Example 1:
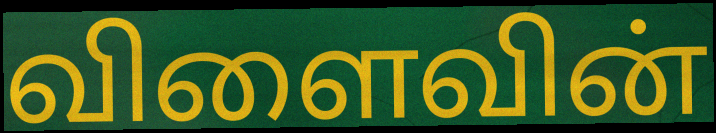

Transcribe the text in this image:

விளைவின்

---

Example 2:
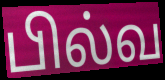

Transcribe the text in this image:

பில்வ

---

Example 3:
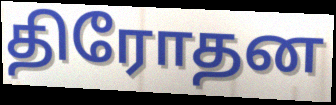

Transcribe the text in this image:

திரோதன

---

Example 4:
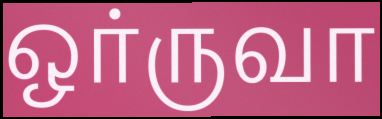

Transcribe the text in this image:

ஒர்ருவா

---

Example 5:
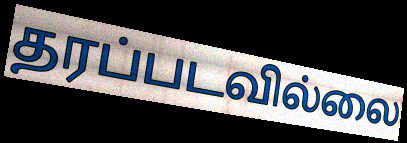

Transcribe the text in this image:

தரப்படவில்லை